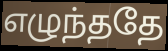
எழுந்ததே